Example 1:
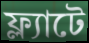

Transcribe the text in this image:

ফ্ল্যাটে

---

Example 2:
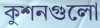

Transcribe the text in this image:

কুশনগুলো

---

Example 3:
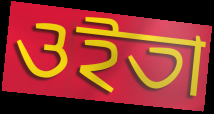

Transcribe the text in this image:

ওইতা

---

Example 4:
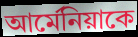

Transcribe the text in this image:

আর্মেনিয়াকে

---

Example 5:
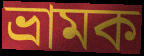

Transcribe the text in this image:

ভ্রামক